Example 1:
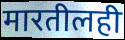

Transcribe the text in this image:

मारतीलही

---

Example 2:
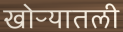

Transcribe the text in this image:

खोऱ्यातली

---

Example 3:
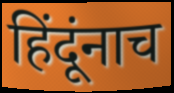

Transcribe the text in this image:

हिंदूंनाच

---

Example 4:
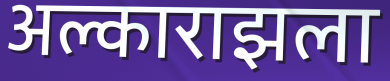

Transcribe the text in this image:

अल्काराझला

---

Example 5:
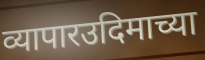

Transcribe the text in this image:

व्यापारउदिमाच्या